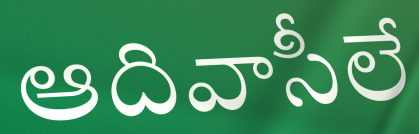
ఆదివాసీలే